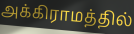
அக்கிராமத்தில்